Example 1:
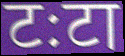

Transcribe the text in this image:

टःटा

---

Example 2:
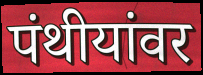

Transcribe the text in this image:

पंथीयांवर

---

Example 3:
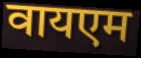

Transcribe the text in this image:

वायएम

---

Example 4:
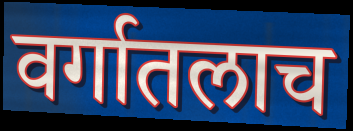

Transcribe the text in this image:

वर्गातलाच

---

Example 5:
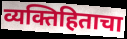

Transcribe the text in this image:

व्यक्तिहिताचा